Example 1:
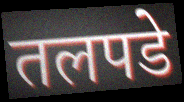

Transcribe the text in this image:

तलपडे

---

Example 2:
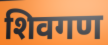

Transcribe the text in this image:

शिवगण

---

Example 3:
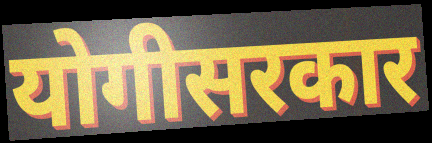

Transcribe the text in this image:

योगीसरकार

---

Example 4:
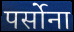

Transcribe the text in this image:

पर्सोना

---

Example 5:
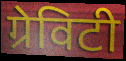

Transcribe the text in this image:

ग्रेविटी